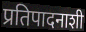
प्रतिपादनाशी